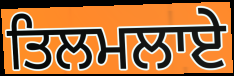
ਤਿਲਮਲਾਏ